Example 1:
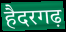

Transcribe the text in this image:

हैदरगढ़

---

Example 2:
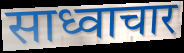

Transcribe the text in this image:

साध्वाचार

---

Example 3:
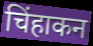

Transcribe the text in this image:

चिंहाकन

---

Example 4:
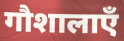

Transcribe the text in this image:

गौशालाएँ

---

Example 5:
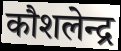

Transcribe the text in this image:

कौशलेन्द्र